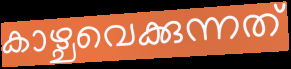
കാഴ്ചവെക്കുന്നത്